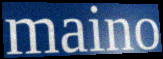
maino